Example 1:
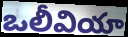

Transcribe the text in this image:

ఒలీవియా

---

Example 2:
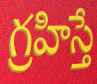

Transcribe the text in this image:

గ్రహిస్తే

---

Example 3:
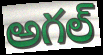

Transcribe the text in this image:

అగల్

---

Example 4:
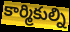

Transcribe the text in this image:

కార్మికుల్ని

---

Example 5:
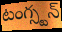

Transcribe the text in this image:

టంగ్స్టన్